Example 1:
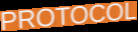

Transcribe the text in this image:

PROTOCOL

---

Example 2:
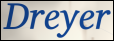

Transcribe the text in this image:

Dreyer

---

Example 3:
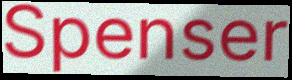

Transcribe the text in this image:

Spenser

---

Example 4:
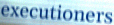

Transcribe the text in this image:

executioners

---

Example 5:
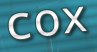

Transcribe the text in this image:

cox